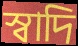
স্বাদি